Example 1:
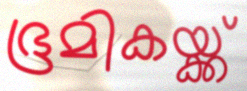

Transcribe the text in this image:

ഭൂമികയ്ക്ക്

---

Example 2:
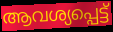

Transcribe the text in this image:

ആവശ്യപ്പെട്ട്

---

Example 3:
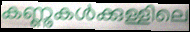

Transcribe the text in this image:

കണ്ണുകൾക്കുള്ളിലെ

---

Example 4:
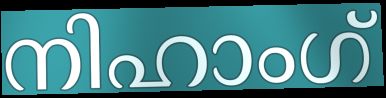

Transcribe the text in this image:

നിഹാംഗ്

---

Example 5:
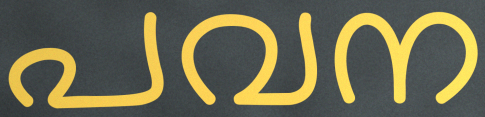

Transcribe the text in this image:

പവന